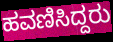
ಹವಣಿಸಿದ್ದರು